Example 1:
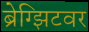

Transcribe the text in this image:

ब्रेग्झिटवर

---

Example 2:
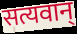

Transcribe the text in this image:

सत्यवान्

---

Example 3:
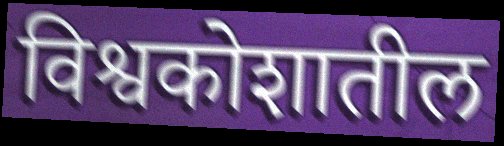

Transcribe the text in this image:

विश्वकोशातील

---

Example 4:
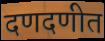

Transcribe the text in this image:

दणदणीत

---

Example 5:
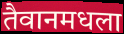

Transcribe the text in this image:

तैवानमधला